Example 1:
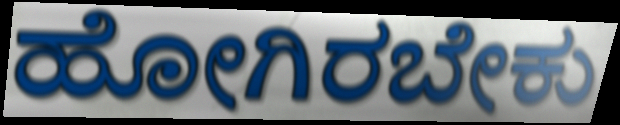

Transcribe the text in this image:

ಹೋಗಿರಬೇಕು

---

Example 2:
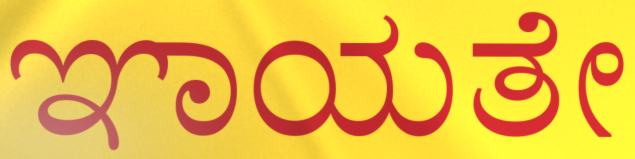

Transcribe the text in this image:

ಞಾಯತೇ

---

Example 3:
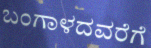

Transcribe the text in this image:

ಬಂಗಾಳದವರೆಗೆ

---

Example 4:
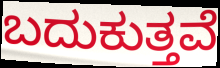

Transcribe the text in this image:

ಬದುಕುತ್ತವೆ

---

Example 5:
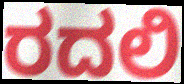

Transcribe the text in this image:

ರದಲಿ